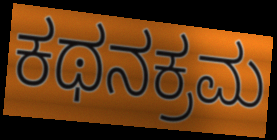
ಕಥನಕ್ರಮ